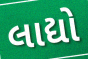
લાદ્યો